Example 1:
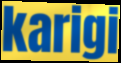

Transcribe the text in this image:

karigi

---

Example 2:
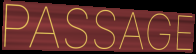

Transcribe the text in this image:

PASSAGE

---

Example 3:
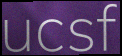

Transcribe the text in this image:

ucsf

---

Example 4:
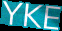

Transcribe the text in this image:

YKE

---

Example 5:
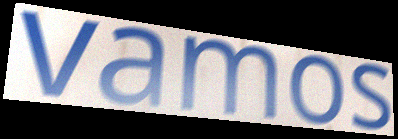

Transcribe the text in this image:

vamos